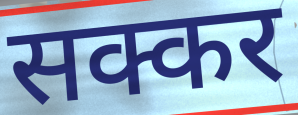
सक्कर